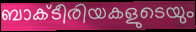
ബാക്ടീരിയകളുടെയും